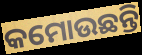
କମୋଉଛନ୍ତି